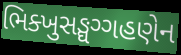
ભિક્ખુસઙ્ઘગ્ગહણેન